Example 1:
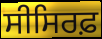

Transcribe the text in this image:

ਸੀਸਿਰਫ਼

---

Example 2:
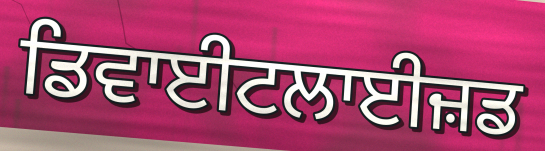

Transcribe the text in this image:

ਡਿਵਾਈਟਲਾਈਜ਼ਡ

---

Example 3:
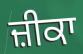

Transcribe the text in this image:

ਜ਼ੀਕਾ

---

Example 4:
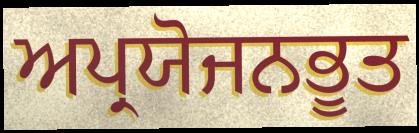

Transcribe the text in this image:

ਅਪ੍ਰਯੋਜਨਭੂਤ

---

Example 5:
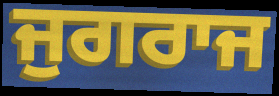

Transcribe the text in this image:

ਜੁਗਰਾਜ